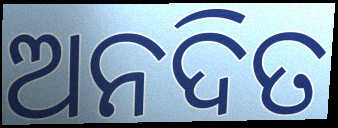
ଅନଦିତ